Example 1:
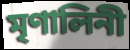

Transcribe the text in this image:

মৃণালিনী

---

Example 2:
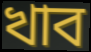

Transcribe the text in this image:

খাব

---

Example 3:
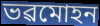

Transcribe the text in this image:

ভৱমোহন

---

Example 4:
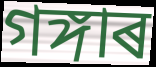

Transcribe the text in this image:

গঙ্গাৰ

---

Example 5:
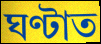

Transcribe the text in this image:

ঘণ্টাত